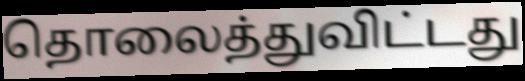
தொலைத்துவிட்டது